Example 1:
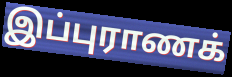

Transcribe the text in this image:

இப்புராணக்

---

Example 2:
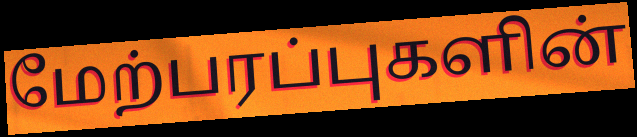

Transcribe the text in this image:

மேற்பரப்புகளின்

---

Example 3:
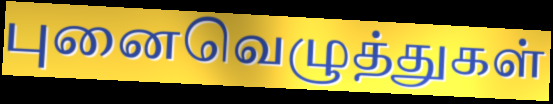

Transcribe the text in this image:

புனைவெழுத்துகள்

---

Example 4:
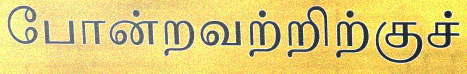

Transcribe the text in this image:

போன்றவற்றிற்குச்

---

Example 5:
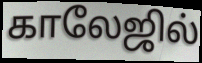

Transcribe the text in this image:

காலேஜில்